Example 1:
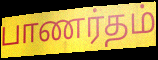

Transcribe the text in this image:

பாணர்தம்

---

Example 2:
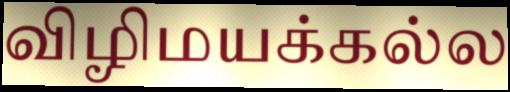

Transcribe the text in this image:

விழிமயக்கல்ல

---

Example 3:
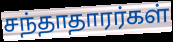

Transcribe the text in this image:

சந்தாதாரர்கள்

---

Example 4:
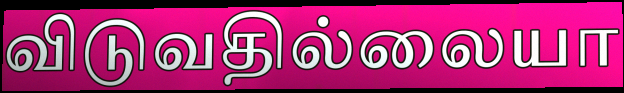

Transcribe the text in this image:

விடுவதில்லையா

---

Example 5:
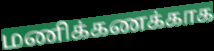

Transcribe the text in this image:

மணிக்கணக்காக